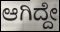
ಆಗಿದ್ದೇ